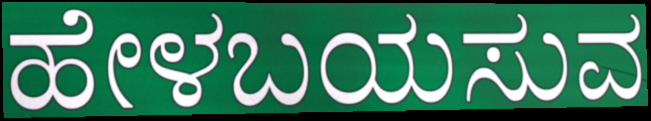
ಹೇಳಬಯಸುವ